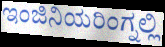
ಇಂಜಿನಿಯರಿಂಗ್ನಲ್ಲಿ